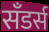
सॅंडर्स